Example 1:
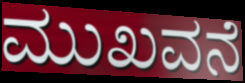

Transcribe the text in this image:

ಮುಖವನೆ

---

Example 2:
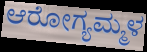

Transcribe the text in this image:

ಆರೋಗ್ಯಮ್ಮಳ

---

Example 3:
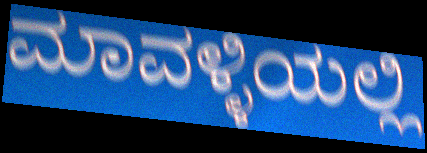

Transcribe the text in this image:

ಮಾವಳ್ಳಿಯಲ್ಲಿ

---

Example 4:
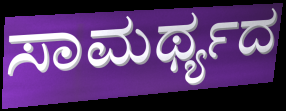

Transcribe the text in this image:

ಸಾಮರ್ಥ್ಯದ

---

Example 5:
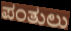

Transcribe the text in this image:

ಪಂತುಲು